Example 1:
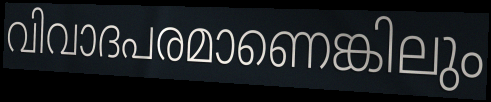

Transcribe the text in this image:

വിവാദപരമാണെങ്കിലും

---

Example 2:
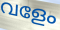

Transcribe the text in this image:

വളേം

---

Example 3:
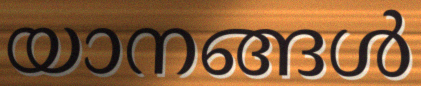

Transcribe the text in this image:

യാനങ്ങൾ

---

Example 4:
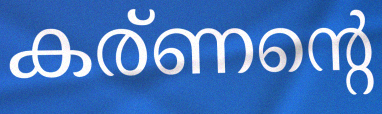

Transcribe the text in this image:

കര്ണന്റെ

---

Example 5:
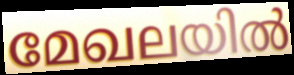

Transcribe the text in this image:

മേഖലയിൽ